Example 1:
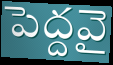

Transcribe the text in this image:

పెద్దవై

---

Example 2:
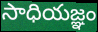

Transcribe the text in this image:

సాధియజ్ఞం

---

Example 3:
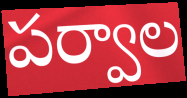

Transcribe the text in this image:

పర్వాల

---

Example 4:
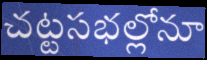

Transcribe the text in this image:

చట్టసభల్లోనూ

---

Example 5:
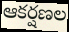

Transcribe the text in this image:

ఆకర్షణల